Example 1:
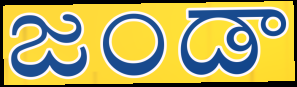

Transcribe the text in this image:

జండా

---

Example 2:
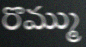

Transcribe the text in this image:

రొమ్ము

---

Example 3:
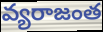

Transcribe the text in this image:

వ్యరాజంత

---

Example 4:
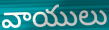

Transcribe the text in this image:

వాయులు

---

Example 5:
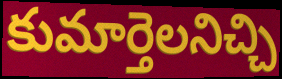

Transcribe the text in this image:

కుమార్తెలనిచ్చి